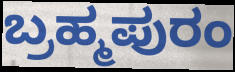
ಬ್ರಹ್ಮಪುರಂ